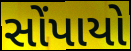
સોંપાયો